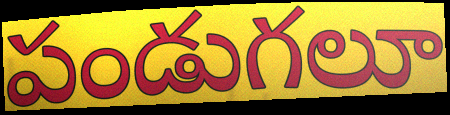
పండుగలూ